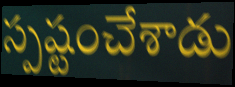
స్పష్టంచేశాడు